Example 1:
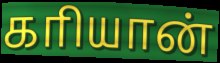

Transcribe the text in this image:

கரியான்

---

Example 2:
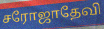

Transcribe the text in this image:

சரோஜாதேவி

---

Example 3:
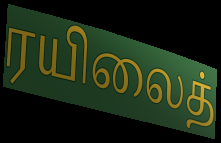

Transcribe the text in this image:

ரயிலைத்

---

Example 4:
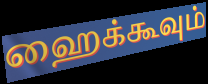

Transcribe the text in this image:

ஹைக்கூவும்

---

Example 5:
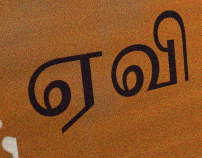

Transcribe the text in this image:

ஏவி